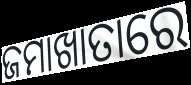
ଜମାଖାତାରେ